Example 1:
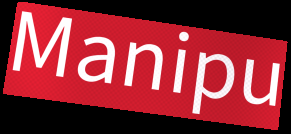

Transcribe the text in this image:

Manipu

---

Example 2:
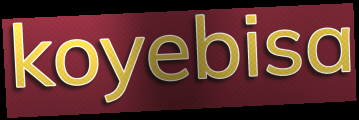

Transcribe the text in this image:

koyebisa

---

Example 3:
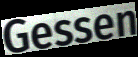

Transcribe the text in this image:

Gessen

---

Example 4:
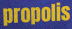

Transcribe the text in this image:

propolis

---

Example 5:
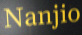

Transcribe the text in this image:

Nanjio